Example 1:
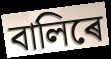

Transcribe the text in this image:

বালিৰে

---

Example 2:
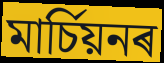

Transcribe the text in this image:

মাৰ্চিয়নৰ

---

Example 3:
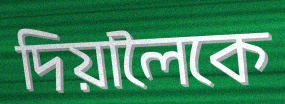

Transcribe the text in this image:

দিয়ালৈকে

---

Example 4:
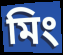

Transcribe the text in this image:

মিং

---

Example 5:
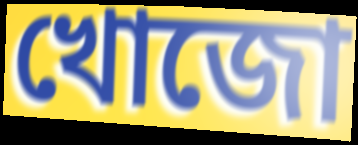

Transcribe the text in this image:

খোজো